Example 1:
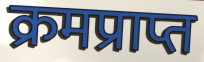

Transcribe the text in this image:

क्रमप्राप्‍त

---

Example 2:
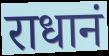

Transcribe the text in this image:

राधानं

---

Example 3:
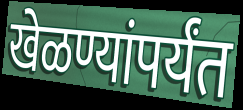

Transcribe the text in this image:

खेळण्यांपर्यंत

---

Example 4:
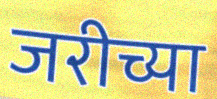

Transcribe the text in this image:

जरीच्या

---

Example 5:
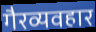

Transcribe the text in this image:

गैरव्यवहार